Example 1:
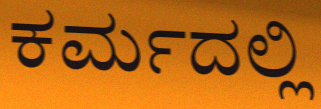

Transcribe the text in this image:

ಕರ್ಮದಲ್ಲಿ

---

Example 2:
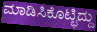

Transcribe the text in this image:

ಮಾಡಿಸಿಕೊಟ್ಟಿದ್ದು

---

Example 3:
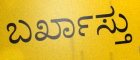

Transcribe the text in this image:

ಬರ್ಖಾಸ್ತು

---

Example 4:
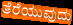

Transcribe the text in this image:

ತೆರೆಯುವುದು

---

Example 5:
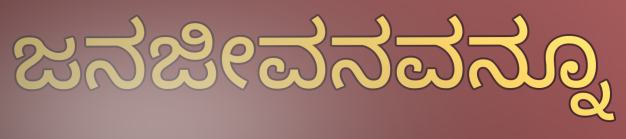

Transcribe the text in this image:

ಜನಜೀವನವನ್ನೂ